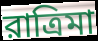
রাত্রিমা